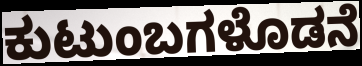
ಕುಟುಂಬಗಳೊಡನೆ